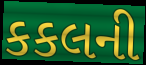
કકલની